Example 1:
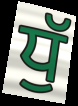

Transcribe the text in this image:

ਧੁੱ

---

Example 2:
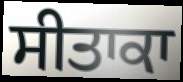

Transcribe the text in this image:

ਸੀਤਾਕਾ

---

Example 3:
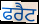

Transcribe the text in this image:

ਫਰੈਟ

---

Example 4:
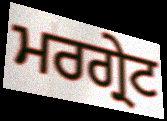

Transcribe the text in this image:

ਮਰਗ੍ਰੇਟ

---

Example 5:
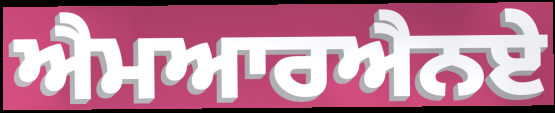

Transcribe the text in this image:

ਐਮਆਰਐਨਏ